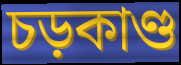
চড়কাণ্ড